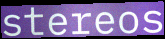
stereos